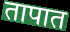
तापात